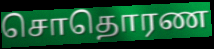
சொதொரண